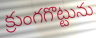
క్రుంగగొట్టును